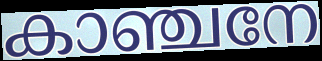
കാഞ്ചനേ